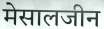
मेसालजीन